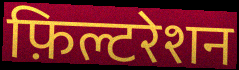
फ़िल्टरेशन